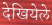
देखियेले